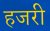
हजरी